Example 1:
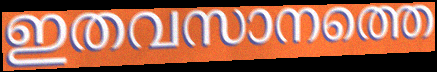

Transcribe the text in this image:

ഇതവസാനത്തെ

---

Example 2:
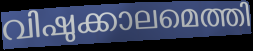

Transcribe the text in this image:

വിഷുക്കാലമെത്തി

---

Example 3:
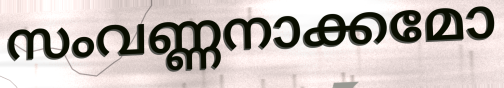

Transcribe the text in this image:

സംവണ്ണനാക്കമോ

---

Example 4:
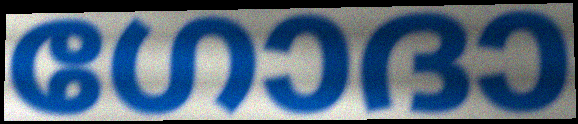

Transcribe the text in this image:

ഗോദാ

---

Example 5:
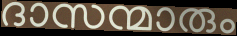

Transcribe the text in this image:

ദാസന്മാരും